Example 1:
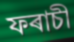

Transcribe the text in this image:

ফৰাচী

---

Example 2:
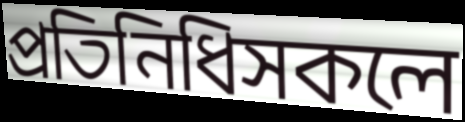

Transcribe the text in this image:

প্ৰতিনিধিসকলে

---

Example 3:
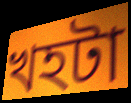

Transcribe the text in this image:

খহটা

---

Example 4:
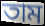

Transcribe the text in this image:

তাম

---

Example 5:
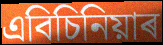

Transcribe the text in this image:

এবিচিনিয়াৰ